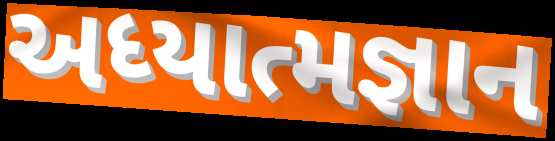
અધ્યાત્મજ્ઞાન